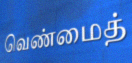
வெண்மைத்